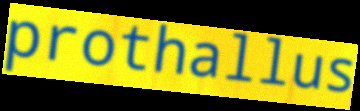
prothallus